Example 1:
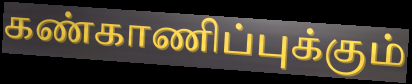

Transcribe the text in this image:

கண்காணிப்புக்கும்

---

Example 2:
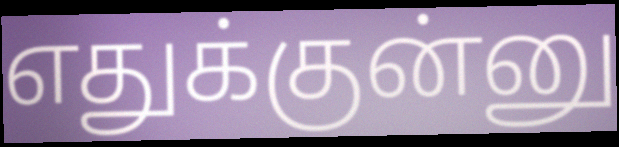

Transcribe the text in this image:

எதுக்குன்னு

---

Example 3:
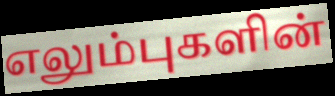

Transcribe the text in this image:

எலும்புகளின்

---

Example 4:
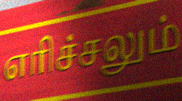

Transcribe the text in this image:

எரிச்சலும்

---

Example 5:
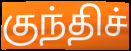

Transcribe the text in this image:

குந்திச்